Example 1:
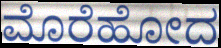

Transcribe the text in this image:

ಮೊರೆಹೋದ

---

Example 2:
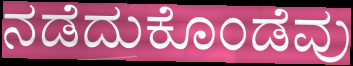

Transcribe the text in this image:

ನಡೆದುಕೊಂಡೆವು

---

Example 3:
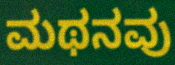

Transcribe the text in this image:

ಮಥನವು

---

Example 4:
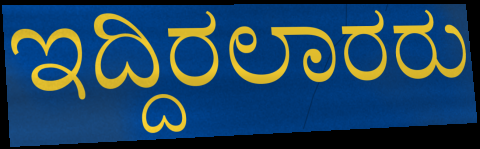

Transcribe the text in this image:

ಇದ್ದಿರಲಾರರು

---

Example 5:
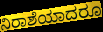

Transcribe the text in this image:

ನಿರಾಶೆಯಾದರೂ